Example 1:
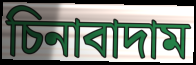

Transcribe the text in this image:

চিনাবাদাম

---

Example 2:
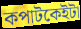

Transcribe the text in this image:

কপাটকেইটা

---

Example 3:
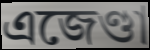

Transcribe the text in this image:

এজেণ্ডা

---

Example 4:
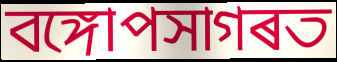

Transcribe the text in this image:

বঙ্গোপসাগৰত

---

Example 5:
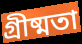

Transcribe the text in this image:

গ্ৰীষ্মতা